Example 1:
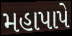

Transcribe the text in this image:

મહાપાપે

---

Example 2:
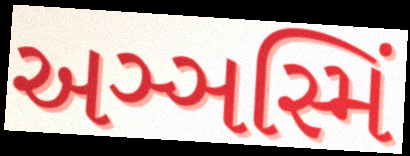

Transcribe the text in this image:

અઞ્ઞસ્મિં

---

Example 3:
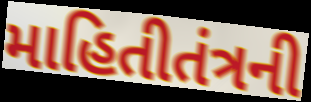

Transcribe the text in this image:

માહિતીતંત્રની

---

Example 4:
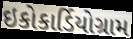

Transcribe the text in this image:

ઇકોકાર્ડિયોગ્રામ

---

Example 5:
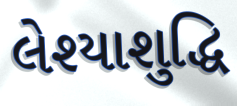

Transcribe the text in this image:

લેશ્યાશુદ્ધિ